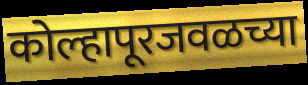
कोल्हापूरजवळच्या